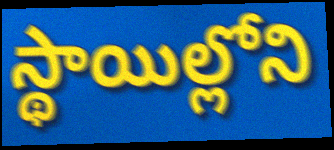
స్థాయిల్లోని